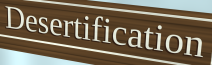
Desertification